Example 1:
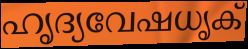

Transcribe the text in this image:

ഹൃദ്യവേഷധൃക്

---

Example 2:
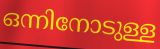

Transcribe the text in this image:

ഒന്നിനോടുള്ള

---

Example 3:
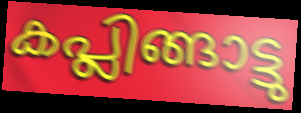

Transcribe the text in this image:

കപ്ലിങ്ങാട്ടു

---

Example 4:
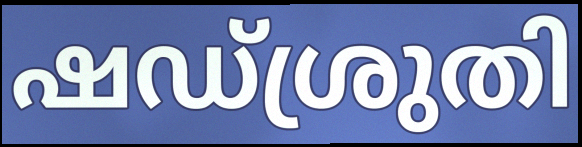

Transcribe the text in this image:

ഷഡ്ശ്രുതി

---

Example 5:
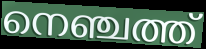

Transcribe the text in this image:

നെഞ്ചത്ത്